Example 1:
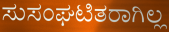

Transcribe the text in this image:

ಸುಸಂಘಟಿತರಾಗಿಲ್ಲ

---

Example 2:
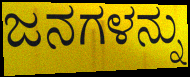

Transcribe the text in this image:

ಜನಗಳನ್ನು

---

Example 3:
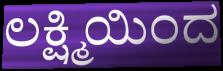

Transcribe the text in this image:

ಲಕ್ಷ್ಮಿಯಿಂದ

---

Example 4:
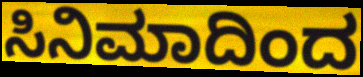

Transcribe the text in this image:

ಸಿನಿಮಾದಿಂದ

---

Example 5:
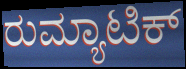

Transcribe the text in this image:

ರುಮ್ಯಾಟಿಕ್